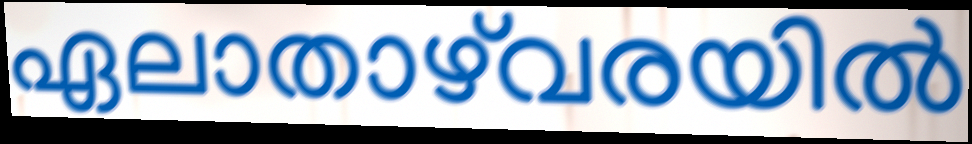
ഏലാതാഴ്‌വരയിൽ